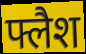
फ्लैश